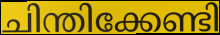
ചിന്തിക്കേണ്ടി